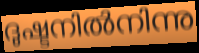
ദുഷ്ടനിൽനിന്നു